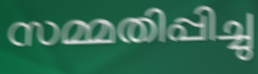
സമ്മതിപ്പിച്ചു